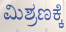
ಮಿಶ್ರಣಕ್ಕೆ